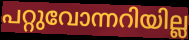
പറ്റുവോന്നറിയില്ല